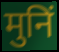
मुनिं